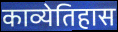
काव्येतिहास